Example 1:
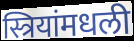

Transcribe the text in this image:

स्त्रियांमधली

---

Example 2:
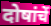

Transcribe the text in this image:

दोषांचें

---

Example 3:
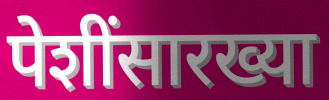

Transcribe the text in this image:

पेशींसारख्या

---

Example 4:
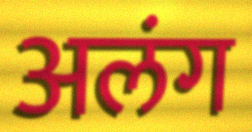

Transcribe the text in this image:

अलंग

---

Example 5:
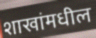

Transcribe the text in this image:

शाखांमधील